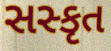
સસ્કૃત